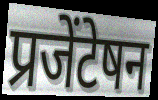
प्रजेंटेषन